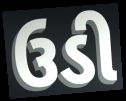
ઉડી